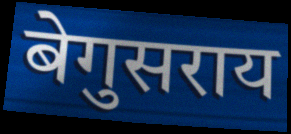
बेगुसराय